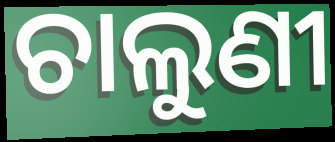
ଚାଲୁଣୀ